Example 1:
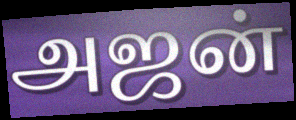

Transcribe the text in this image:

அஜன்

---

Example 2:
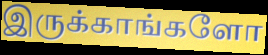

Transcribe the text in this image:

இருக்காங்களோ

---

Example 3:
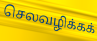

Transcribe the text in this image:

செலவழிக்கக்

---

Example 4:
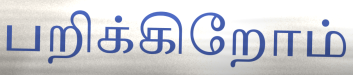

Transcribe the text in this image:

பறிக்கிறோம்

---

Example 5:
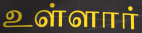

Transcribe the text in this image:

உள்ளார்